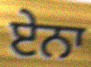
ਏਨਾ